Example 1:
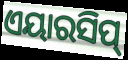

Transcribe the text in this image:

ଏୟାରସିପ୍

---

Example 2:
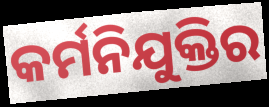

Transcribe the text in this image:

କର୍ମନିଯୁକ୍ତିର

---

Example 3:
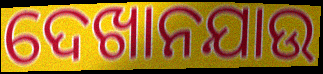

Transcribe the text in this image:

ଦେଖାନଯାଉ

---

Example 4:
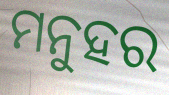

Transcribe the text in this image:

ମନୁହର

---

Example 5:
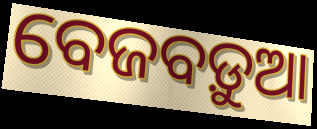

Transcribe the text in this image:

ବେଜବଡ଼ୁଆ